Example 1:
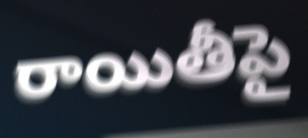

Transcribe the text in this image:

రాయితీపై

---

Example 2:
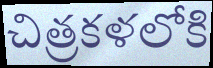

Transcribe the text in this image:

చిత్రకళలోకి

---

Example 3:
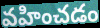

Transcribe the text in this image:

వహించడం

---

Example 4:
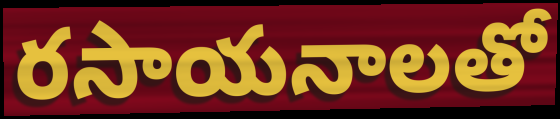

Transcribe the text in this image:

రసాయనాలతో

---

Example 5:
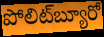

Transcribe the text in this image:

పోలిట్‌బ్యూరో